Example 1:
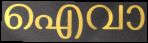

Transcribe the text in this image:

ഐവാ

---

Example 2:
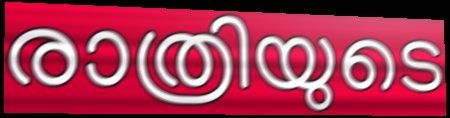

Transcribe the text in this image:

രാത്രിയുടെ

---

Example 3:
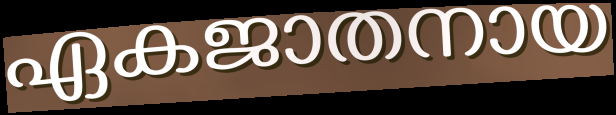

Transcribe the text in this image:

ഏകജാതനായ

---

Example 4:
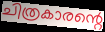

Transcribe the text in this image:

ചിത്രകാരന്റെ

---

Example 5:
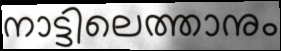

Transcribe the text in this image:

നാട്ടിലെത്താനും